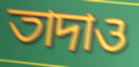
তাদাও